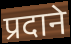
प्रदाने